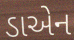
ડાએન